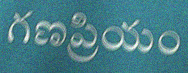
గణప్రియం